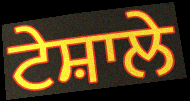
ਟੇਸ਼ਾਲੇ